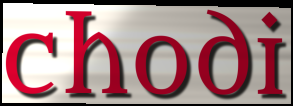
chodi